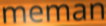
meman